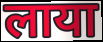
लाया